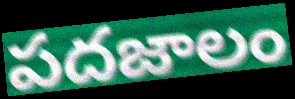
పదజాలం